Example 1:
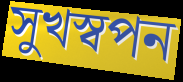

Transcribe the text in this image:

সুখস্বপন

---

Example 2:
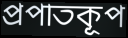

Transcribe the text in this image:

প্রপাতকূপ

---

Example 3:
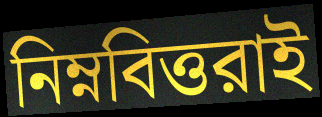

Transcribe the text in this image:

নিম্নবিত্তরাই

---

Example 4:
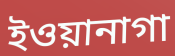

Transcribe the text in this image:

ইওয়ানাগা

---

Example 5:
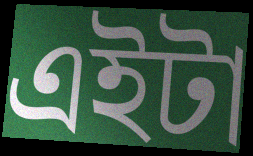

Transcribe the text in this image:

এইটা